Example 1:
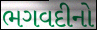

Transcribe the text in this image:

ભગવદીનો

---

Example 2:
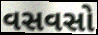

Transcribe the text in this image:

વસવસો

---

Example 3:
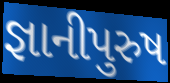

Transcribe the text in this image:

જ્ઞાનીપુરુષ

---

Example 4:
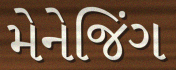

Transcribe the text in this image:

મેનેજિંગ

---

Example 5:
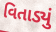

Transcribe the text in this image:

વિતાડ્યું